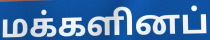
மக்களினப்